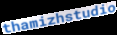
thamizhstudio